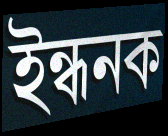
ইন্ধনক